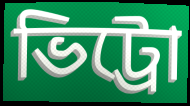
ভিট্রো